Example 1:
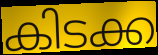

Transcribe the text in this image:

കിടക്ക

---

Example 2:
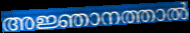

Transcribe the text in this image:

അജ്ഞാനത്താൽ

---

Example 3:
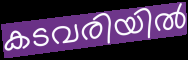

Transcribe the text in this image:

കടവരിയിൽ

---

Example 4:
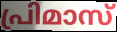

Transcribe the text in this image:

പ്രിമാസ്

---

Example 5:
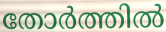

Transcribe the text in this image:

തോർത്തിൽ